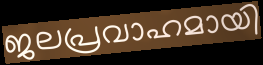
ജലപ്രവാഹമായി